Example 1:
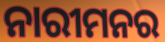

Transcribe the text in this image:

ନାରୀମନର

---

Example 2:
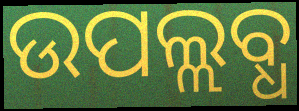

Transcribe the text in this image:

ଉପଲ୍ଲବ୍ଧ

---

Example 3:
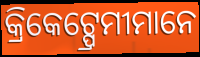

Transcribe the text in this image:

କ୍ରିକେଟ୍ପ୍ରେମୀମାନେ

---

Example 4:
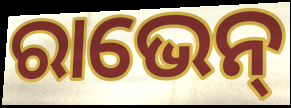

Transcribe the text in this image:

ରାଭେନ୍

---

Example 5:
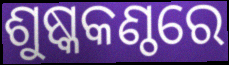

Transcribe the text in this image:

ଶୁଷ୍କକଣ୍ଠରେ